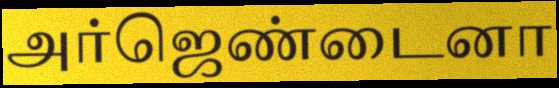
அர்ஜெண்டைனா